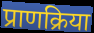
प्राणक्रिया